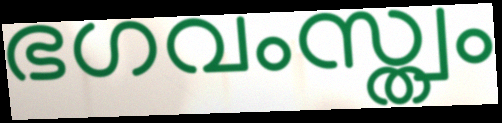
ഭഗവംസ്ത്വം